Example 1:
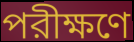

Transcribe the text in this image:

পরীক্ষণে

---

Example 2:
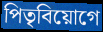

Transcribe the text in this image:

পিতৃবিয়োগে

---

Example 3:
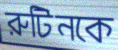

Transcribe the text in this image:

রুটিনকে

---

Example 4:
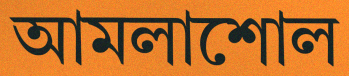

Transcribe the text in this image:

আমলাশোল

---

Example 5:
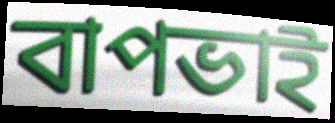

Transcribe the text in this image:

বাপভাই